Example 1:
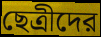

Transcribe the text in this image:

ছেত্রীদের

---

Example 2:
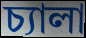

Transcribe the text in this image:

চ্যালা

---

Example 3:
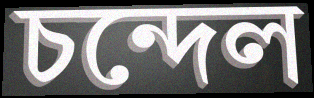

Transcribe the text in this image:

চন্দেল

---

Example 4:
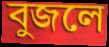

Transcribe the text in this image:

বুজলে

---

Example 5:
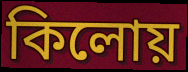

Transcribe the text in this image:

কিলোয়